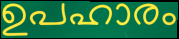
ഉപഹാരം